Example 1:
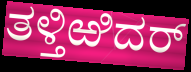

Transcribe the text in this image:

ತಳ್ತಿಱಿದರ್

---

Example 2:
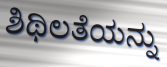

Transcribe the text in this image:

ಶಿಥಿಲತೆಯನ್ನು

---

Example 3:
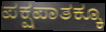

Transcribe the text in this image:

ಪಕ್ಷಪಾತಕ್ಕೂ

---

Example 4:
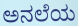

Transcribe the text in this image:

ಅನಲೆಯ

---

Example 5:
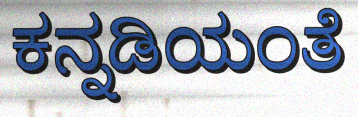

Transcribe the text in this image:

ಕನ್ನಡಿಯಂತೆ